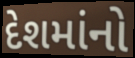
દેશમાંનો